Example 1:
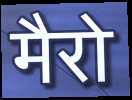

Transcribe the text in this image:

मैरो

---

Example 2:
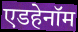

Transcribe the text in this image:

एडहेनॉम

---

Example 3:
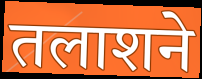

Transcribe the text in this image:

तलाशने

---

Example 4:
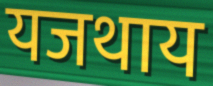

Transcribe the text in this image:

यजथाय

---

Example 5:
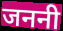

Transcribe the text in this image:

जननी